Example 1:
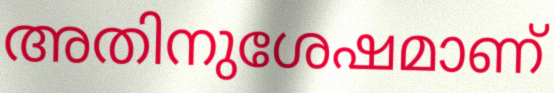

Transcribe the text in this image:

അതിനുശേഷമാണ്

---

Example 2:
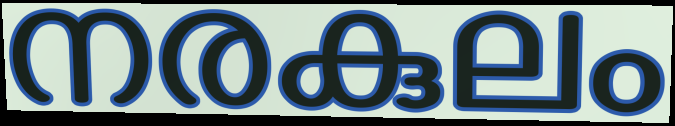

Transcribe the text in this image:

നരകുലം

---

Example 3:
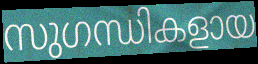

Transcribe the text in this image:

സുഗന്ധികളായ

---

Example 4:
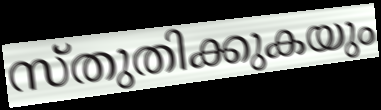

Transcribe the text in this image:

സ്തുതിക്കുകയും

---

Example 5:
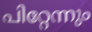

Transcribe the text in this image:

പിറ്റേന്നും